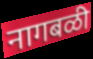
नागबळी